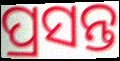
ପ୍ରସନ୍ତ